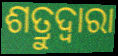
ଶତ୍ରୁଦ୍ଵାରା